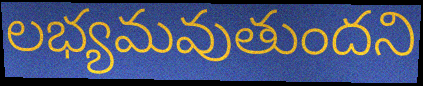
లభ్యమవుతుందని